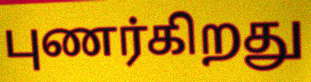
புணர்கிறது